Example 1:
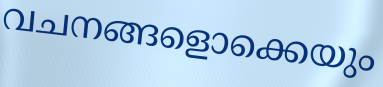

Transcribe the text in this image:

വചനങ്ങളൊക്കെയും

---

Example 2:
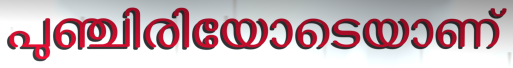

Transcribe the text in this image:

പുഞ്ചിരിയോടെയാണ്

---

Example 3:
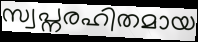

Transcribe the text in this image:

സ്വപ്നരഹിതമായ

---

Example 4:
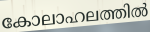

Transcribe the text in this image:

കോലാഹലത്തിൽ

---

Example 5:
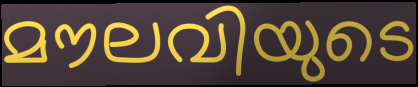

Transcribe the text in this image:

മൗലവിയുടെ